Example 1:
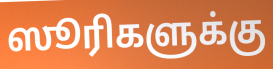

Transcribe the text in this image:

ஸூரிகளுக்கு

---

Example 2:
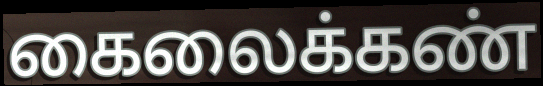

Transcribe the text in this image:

கைலைக்கண்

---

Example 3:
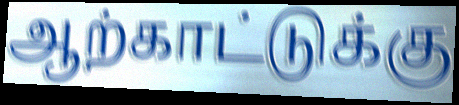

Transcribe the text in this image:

ஆற்காட்டுக்கு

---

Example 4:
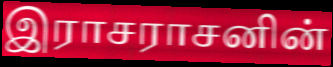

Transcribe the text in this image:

இராசராசனின்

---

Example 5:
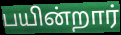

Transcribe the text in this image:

பயின்றார்